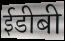
ईडीबी